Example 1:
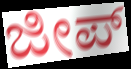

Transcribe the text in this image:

ಜೀಪ್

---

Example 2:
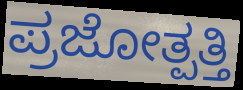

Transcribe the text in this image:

ಪ್ರಜೋತ್ಪತ್ತಿ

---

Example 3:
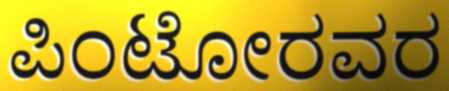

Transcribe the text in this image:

ಪಿಂಟೋರವರ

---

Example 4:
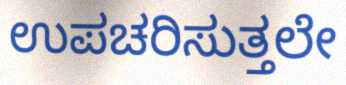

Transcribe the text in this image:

ಉಪಚರಿಸುತ್ತಲೇ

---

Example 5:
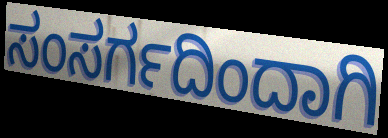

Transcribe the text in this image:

ಸಂಸರ್ಗದಿಂದಾಗಿ